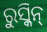
ରୁସ୍କିନ୍